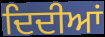
ਦਿਦੀਆਂ